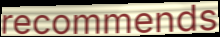
recommends